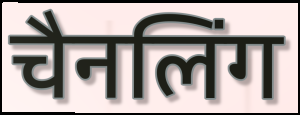
चैनलिंग